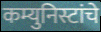
कम्युनिस्टांचे